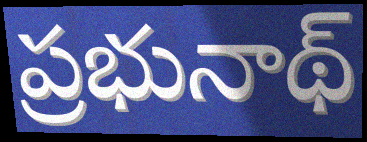
ప్రభునాథ్